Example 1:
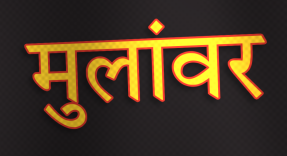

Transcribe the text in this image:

मुलांवर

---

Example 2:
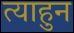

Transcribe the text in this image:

त्याहुन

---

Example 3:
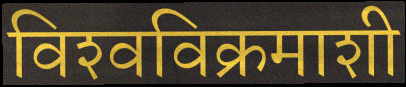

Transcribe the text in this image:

विश्वविक्रमाशी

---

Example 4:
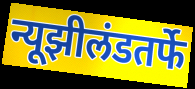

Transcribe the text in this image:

न्यूझीलंडतर्फे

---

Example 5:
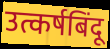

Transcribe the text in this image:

उत्कर्षबिंदू